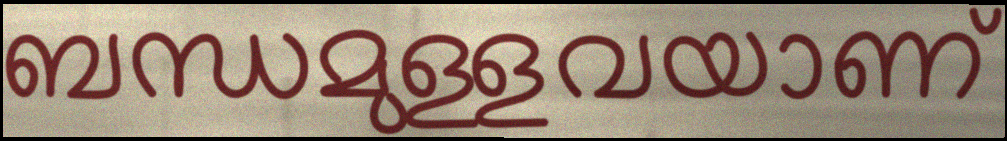
ബന്ധമുള്ളവയാണ്